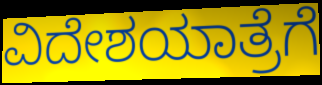
ವಿದೇಶಯಾತ್ರೆಗೆ